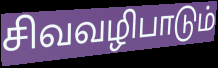
சிவவழிபாடும்